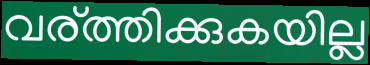
വര്ത്തിക്കുകയില്ല